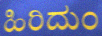
ಹಿರಿದುಂ